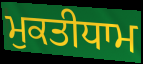
ਮੁਕਤੀਧਾਮ